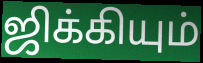
ஜிக்கியும்